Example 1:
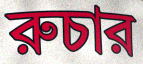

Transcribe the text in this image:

রুচার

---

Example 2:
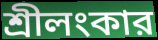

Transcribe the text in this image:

শ্রীলংকার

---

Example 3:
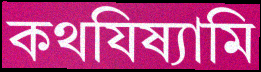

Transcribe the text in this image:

কথযিষ্যামি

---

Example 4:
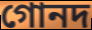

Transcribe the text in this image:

গোনদ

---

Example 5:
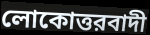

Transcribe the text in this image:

লোকোত্তরবাদী